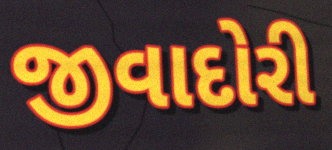
જીવાદોરી